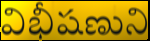
విభీషణుని